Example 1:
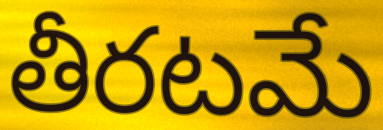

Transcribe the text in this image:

తీరటమే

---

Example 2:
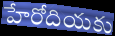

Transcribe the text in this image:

హేరోదియకు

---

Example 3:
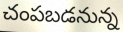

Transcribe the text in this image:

చంపబడనున్న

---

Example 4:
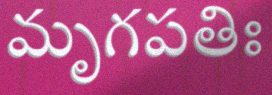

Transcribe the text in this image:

మృగపతిః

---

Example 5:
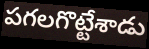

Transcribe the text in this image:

పగలగొట్టేశాడు